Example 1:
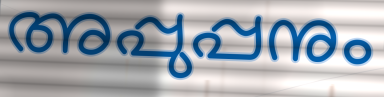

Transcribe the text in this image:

അപ്പുപ്പനും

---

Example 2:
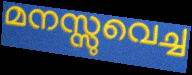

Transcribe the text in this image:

മനസ്സുവെച്ച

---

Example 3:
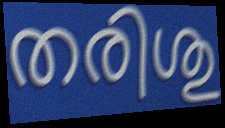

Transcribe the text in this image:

തരിശു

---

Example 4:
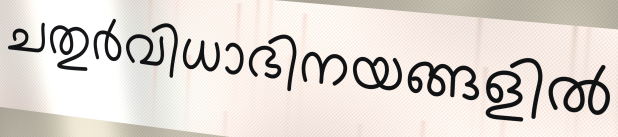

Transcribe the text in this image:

ചതുർവിധാഭിനയങ്ങളിൽ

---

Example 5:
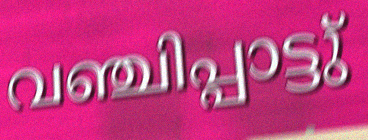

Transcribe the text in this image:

വഞ്ചിപ്പാട്ടു്